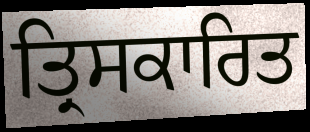
ਤ੍ਰਿਸਕਾਰਿਤ